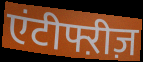
एंटीफ्ऱीज़